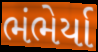
ભંભેર્યા